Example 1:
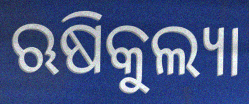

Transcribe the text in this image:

ଋଷିକୁଲ୍ୟା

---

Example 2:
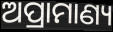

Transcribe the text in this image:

ଅପ୍ରାମାଣ୍ୟ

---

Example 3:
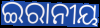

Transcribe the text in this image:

ଇରାନୀୟ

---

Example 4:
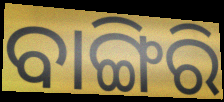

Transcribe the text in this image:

ବାଙ୍ଗିରି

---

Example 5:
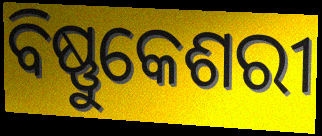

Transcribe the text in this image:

ବିଷ୍ଣୁକେଶରୀ